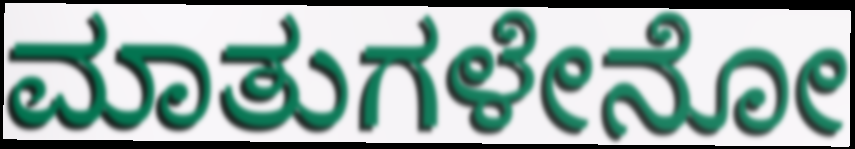
ಮಾತುಗಳೇನೋ